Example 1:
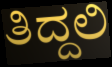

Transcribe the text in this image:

ತಿದ್ದಲಿ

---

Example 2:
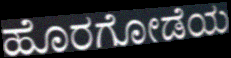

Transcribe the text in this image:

ಹೊರಗೋಡೆಯ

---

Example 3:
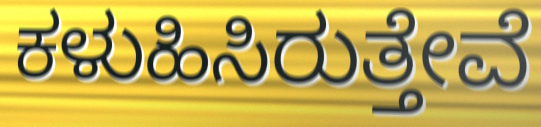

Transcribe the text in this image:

ಕಳುಹಿಸಿರುತ್ತೇವೆ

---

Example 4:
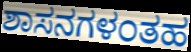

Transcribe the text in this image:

ಶಾಸನಗಳಂತಹ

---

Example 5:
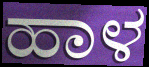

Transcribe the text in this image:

ಹಾಳ